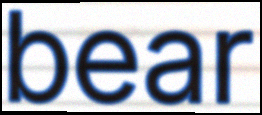
bear